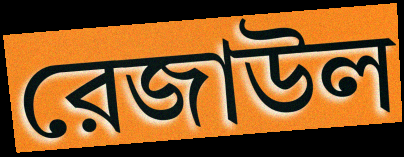
রেজাউল